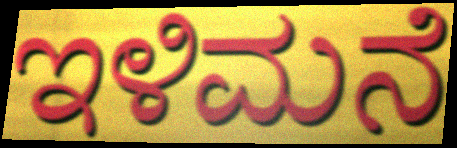
ಇಳಿಮನೆ